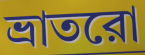
ভ্রাতরো